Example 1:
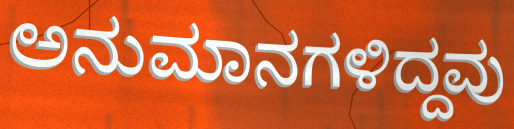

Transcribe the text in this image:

ಅನುಮಾನಗಳಿದ್ದವು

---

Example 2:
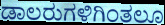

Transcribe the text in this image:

ಡಾಲರುಗಳಿಗಿಂತಲೂ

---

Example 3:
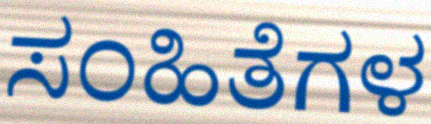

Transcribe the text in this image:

ಸಂಹಿತೆಗಳ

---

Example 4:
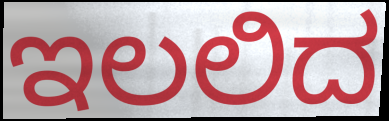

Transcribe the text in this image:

ಇಲಲಿದ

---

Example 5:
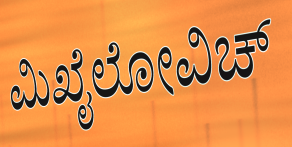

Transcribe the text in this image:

ಮಿಖೈಲೋವಿಚ್